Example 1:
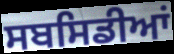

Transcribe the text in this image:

ਸਬਸਿਡੀਆਂ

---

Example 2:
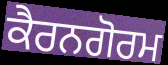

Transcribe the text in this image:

ਕੈਰਨਗੋਰਮ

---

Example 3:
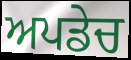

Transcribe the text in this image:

ਅਪਡੇਚ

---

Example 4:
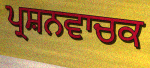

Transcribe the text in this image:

ਪ੍ਰਸ਼ਨਵਾਚਕ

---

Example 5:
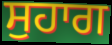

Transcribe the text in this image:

ਸੁਹਾਗ